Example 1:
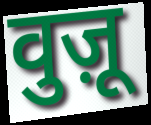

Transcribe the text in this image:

वुज़ू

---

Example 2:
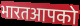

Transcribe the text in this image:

भारतआपको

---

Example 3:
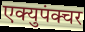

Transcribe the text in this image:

एक्युपंक्चर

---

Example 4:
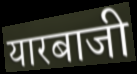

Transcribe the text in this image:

यारबाजी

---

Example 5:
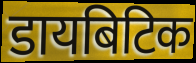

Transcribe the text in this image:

डायबिटिक